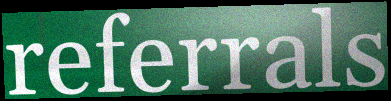
referrals